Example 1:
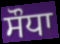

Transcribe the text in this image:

ਸੌਧਾ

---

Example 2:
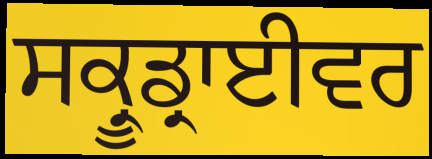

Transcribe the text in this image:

ਸਕ੍ਰੂਡ੍ਰਾਈਵਰ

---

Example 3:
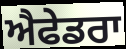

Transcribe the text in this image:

ਐਫੇਡਰਾ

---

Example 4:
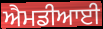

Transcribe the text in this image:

ਐਮਡੀਆਈ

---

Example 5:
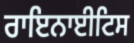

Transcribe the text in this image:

ਰਾਇਨਾਈਟਿਸ